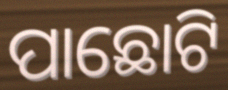
ପାଛୋଟି